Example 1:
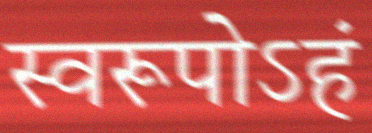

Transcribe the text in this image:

स्वरूपोऽहं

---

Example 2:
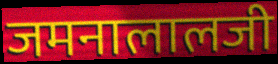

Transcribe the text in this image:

जमनालालजी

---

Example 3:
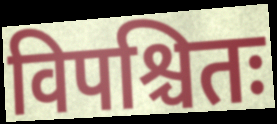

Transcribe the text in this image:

विपश्चितः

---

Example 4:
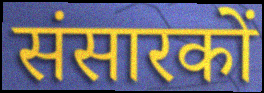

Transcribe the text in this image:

संसारकों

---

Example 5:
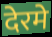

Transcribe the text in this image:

देरमे